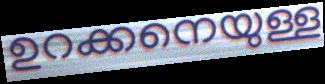
ഉറക്കനെയുള്ള